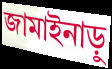
জামাইনাড়ু